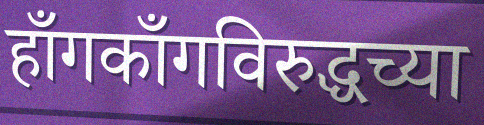
हाँगकाँगविरुद्धच्या